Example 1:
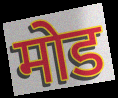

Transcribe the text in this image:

मोड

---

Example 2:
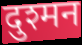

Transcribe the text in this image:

दुश्मन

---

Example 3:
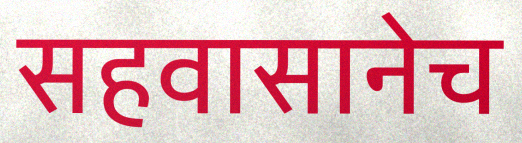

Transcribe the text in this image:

सहवासानेच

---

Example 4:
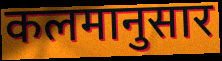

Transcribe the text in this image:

कलमानुसार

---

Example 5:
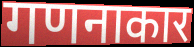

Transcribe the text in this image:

गणनाकार